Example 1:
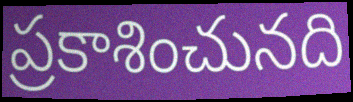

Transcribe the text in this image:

ప్రకాశించునది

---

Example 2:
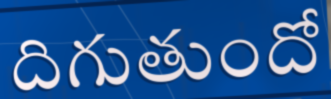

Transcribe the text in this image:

దిగుతుందో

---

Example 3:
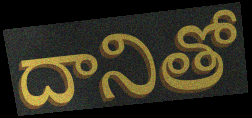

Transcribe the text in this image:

దానితో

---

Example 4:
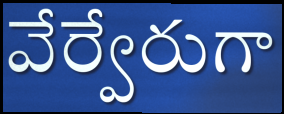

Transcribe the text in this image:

వేర్వేరుగా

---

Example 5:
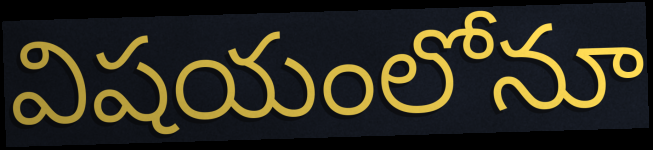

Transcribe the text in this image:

విషయంలోనూ